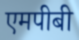
एमपीबी